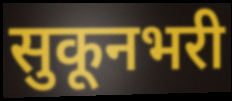
सुकूनभरी